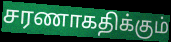
சரணாகதிக்கும்